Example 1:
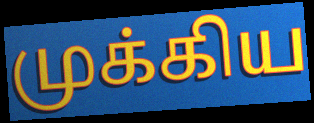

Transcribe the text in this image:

முக்கிய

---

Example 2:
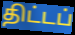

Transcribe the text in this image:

திட்டப்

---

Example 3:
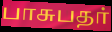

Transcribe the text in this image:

பாசுபதர்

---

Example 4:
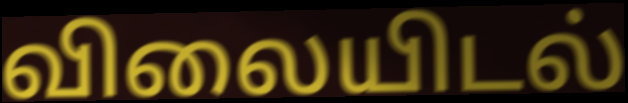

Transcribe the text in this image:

விலையிடல்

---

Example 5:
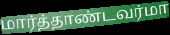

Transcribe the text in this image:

மார்த்தாண்டவர்மா